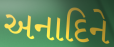
અનાદિને